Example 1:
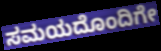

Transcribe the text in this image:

ಸಮಯದೊಂದಿಗೇ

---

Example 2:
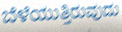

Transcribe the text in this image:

ಬೆಳೆಯುತ್ತಿರುವುದು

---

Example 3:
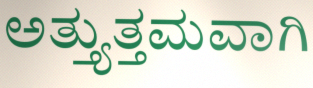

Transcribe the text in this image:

ಅತ್ತ್ಯುತ್ತಮವಾಗಿ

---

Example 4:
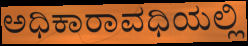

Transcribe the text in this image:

ಅಧಿಕಾರಾವಧಿಯಲ್ಲಿ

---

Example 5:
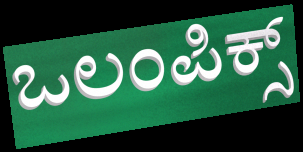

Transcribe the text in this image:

ಒಲಂಪಿಕ್ಸ್